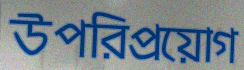
উপরিপ্রয়োগ